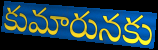
కుమారునకు